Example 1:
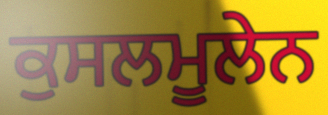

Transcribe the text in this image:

ਕੁਸਲਮੂਲੇਨ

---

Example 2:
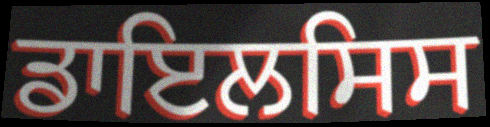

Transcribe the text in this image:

ਡਾਇਲਸਿਸ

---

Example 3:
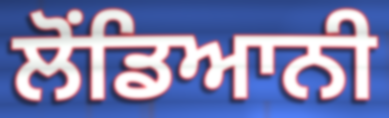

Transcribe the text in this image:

ਲੋਂਡਿਆਨੀ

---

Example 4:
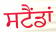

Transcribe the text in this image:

ਸਟੈਂਡਾਂ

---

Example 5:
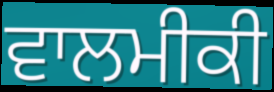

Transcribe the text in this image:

ਵਾਲਮੀਕੀ